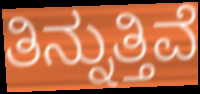
ತಿನ್ನುತ್ತಿವೆ